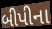
બીપીના